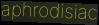
aphrodisiac